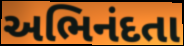
અભિનંદતા